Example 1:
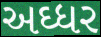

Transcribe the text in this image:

અઘ્ધર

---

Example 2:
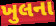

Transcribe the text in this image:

ખુલના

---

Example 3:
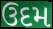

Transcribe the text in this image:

ઉદમ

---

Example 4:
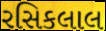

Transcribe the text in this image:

રસિકલાલ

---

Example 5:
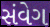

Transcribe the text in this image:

સંવેગ